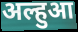
अल्हुआ